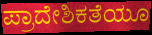
ಪ್ರಾದೇಶಿಕತೆಯೂ